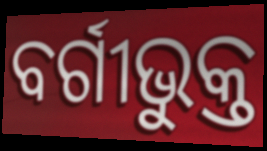
ବର୍ଗୀଭୁକ୍ତ